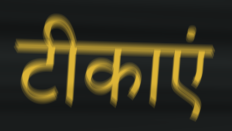
टीकाएं